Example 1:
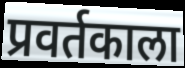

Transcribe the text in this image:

प्रवर्तकाला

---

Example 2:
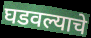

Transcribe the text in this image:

घडवल्याचे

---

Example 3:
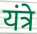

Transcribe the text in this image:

यंत्रे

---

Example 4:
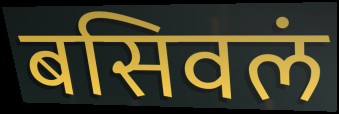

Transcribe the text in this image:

बसिवलं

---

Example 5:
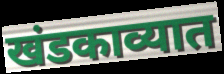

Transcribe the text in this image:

खंडकाव्यात